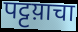
पट्टय़ाचा